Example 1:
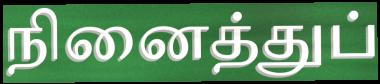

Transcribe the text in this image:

நினைத்துப்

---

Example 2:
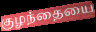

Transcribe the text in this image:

குழந்தையை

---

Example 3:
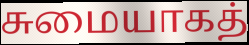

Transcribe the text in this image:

சுமையாகத்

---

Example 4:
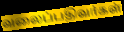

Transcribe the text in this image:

வலைப்பதிவர்கள்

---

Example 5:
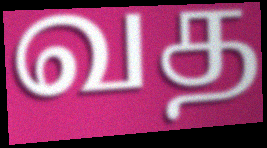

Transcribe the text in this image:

வத